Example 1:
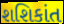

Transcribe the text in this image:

શશિકાંત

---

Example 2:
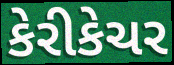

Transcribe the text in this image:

કેરીકેચર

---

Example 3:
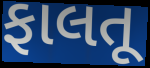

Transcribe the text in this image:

ફાલતૂ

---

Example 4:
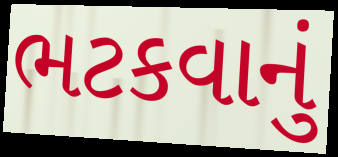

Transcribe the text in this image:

ભટકવાનું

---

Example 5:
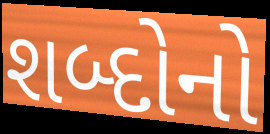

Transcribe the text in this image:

શબ્દોનો